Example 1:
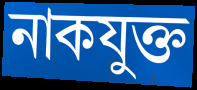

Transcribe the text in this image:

নাকযুক্ত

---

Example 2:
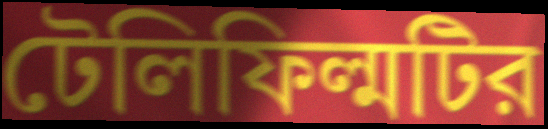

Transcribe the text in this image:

টেলিফিল্মটির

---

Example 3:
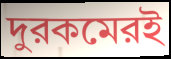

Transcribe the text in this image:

দুরকমেরই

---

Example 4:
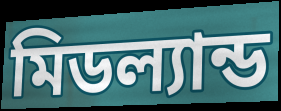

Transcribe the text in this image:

মিডল্যান্ড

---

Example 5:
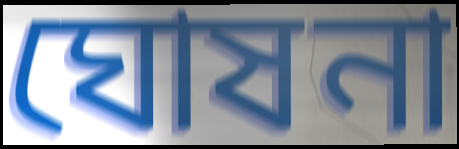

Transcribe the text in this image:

ঘোষনা